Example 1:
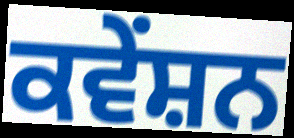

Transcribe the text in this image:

ਕਵੇਂਸ਼ਨ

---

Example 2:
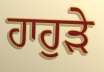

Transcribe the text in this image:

ਹਾਹੁੜੇ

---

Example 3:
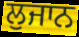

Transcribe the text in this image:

ਲੁਜਾਨ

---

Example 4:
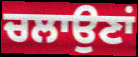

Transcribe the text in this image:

ਚਲਾਉਣਾਂ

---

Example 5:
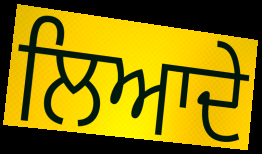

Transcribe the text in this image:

ਲਿਆਦੇ